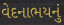
વેદનાભયનું